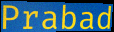
Prabad